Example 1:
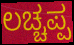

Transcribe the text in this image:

ಲಚ್ಚಪ್ಪ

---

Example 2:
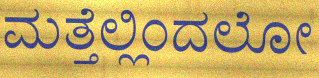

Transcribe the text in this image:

ಮತ್ತೆಲ್ಲಿಂದಲೋ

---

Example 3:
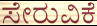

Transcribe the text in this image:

ಸೇರುವಿಕೆ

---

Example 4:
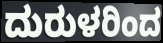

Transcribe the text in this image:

ದುರುಳರಿಂದ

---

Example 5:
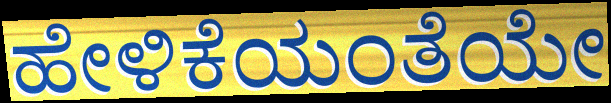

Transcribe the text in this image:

ಹೇಳಿಕೆಯಂತೆಯೇ